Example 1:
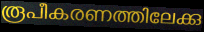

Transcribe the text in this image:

രൂപീകരണത്തിലേക്കു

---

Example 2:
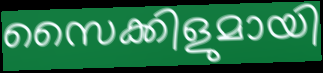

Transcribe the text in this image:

സൈക്കിളുമായി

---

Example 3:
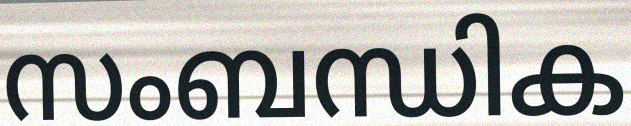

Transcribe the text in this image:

സംബന്ധിക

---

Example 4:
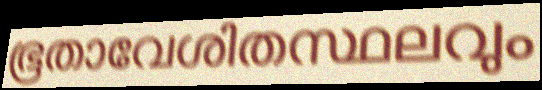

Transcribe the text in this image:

ഭൂതാവേശിതസ്ഥലവും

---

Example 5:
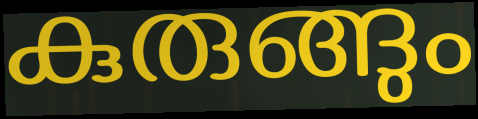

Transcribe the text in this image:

കുരുങ്ങും